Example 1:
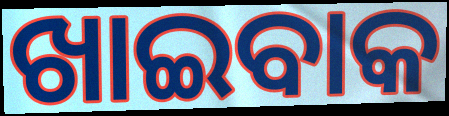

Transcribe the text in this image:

ଖାଇବାକ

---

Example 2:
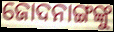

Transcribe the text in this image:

ଜୋଦନାଙ୍ଗଙ୍କୁ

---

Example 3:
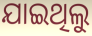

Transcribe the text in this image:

ଯାଇଥିଲୁ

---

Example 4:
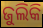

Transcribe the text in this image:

ଜୁଲିକି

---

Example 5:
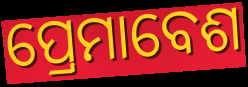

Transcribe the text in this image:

ପ୍ରେମାବେଶ